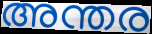
അന്തര